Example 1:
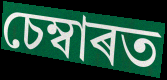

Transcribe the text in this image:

চেম্বাৰত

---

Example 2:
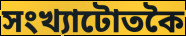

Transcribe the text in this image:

সংখ্যাটোতকৈ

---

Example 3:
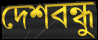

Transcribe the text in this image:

দেশবন্ধু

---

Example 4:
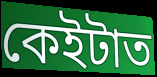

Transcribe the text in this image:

কেইটাত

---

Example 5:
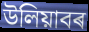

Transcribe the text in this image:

উলিয়াবৰ